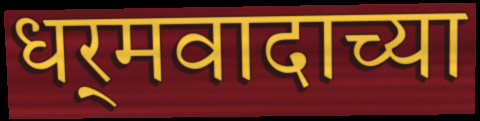
धर्मवादाच्या